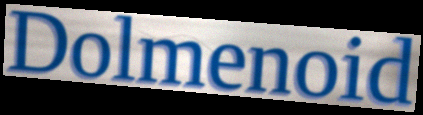
Dolmenoid